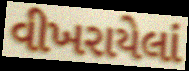
વીખરાયેલાં